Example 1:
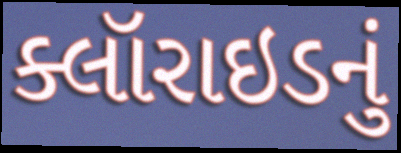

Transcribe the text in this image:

ક્લૉરાઇડનું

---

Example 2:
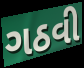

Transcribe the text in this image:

ગઠવી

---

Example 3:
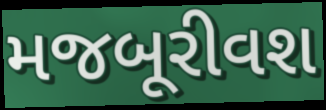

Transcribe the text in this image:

મજબૂરીવશ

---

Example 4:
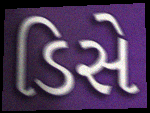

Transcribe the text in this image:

ડિસે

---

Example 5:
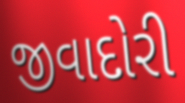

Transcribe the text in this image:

જીવાદોરી